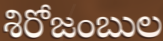
శిరోజంబుల